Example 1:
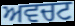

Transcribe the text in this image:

ਅਵਚਟ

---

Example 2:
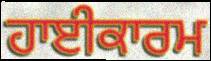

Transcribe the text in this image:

ਹਾਈਕਾਰਮ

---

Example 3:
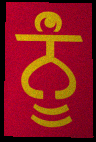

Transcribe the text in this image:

ਨੂਂੰ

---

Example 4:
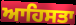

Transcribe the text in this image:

ਆਹਿਸਤਾ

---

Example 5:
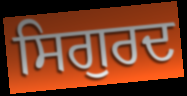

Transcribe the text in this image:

ਸਿਗੁਰਦ